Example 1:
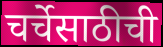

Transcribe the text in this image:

चर्चेसाठीची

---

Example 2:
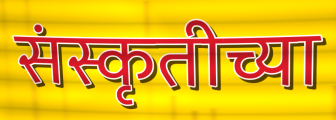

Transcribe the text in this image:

संस्कृतीच्या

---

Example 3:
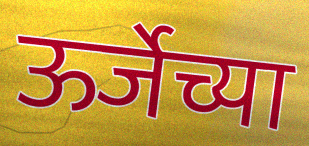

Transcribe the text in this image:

ऊर्जेच्या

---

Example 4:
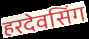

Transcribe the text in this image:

हरदेवसिंग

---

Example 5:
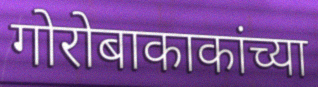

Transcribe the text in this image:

गोरोबाकाकांच्या